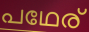
പഥേര്